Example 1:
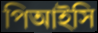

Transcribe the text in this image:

পিআইসি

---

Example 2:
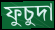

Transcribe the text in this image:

ফুচুদা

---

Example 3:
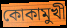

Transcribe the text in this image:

কোকামুখী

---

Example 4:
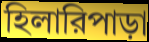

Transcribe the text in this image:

হিলারিপাড়া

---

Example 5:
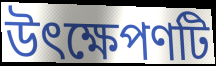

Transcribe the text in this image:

উৎক্ষেপণটি